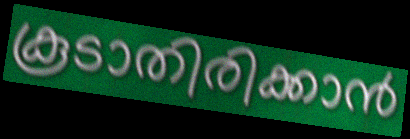
കൂടാതിരിക്കാൻ